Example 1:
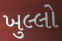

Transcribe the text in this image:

ખુલ્લો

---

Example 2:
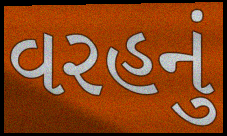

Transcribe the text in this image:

વરહનું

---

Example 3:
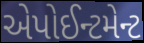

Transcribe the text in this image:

એપોઈન્ટમેન્ટ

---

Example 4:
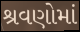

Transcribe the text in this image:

શ્રવણોમાં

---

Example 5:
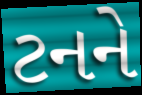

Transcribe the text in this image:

ટનને